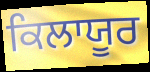
ਕਿਲਾਯੂਰ